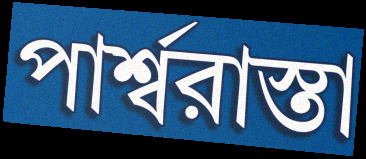
পার্শ্বরাস্তা